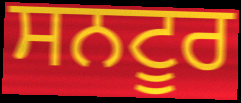
ਸਨਟੂਰ